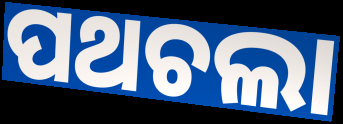
ପଥଚଲା